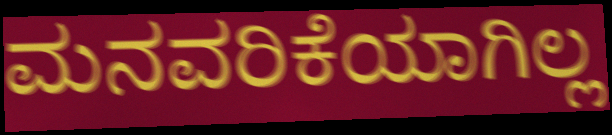
ಮನವರಿಕೆಯಾಗಿಲ್ಲ